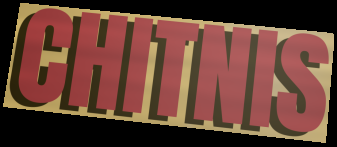
CHITNIS